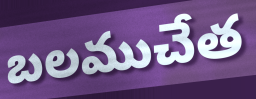
బలముచేత